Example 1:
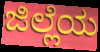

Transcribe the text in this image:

ಜಿಲ್ಲೆಯ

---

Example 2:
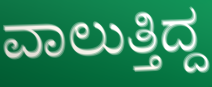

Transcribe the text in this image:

ವಾಲುತ್ತಿದ್ದ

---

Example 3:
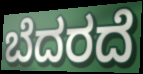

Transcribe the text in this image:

ಬೆದರದೆ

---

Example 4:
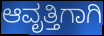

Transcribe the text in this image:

ಆವೃತ್ತಿಗಾಗಿ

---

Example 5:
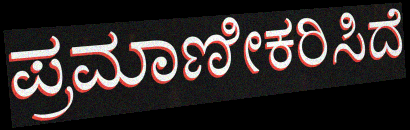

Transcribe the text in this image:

ಪ್ರಮಾಣೀಕರಿಸಿದೆ